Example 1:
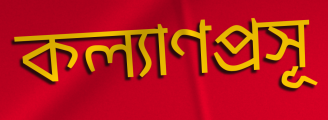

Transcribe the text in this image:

কল্যাণপ্রসূ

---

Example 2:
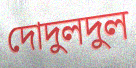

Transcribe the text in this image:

দোদুলদুল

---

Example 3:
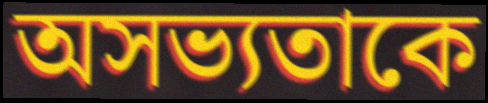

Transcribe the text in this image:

অসভ্যতাকে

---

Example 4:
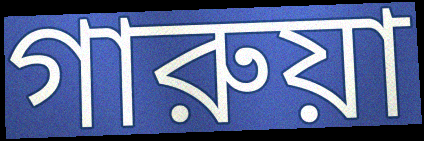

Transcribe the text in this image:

গারুয়া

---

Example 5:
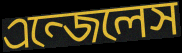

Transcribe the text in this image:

এন্জেলেস